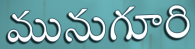
మునుగూరి